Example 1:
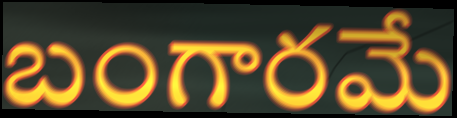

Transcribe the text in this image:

బంగారమే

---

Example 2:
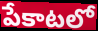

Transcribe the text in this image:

పేకాటలో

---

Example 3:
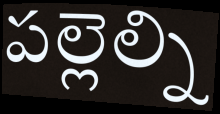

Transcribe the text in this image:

పల్లెల్ని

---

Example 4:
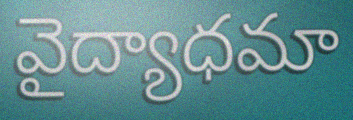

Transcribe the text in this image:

వైద్యాధమా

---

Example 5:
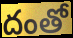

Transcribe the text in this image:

దంతో